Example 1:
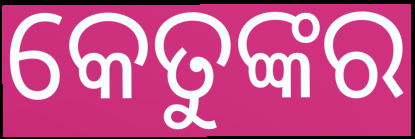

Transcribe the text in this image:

କେତୁଙ୍କର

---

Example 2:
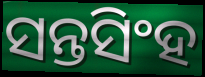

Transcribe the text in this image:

ସନ୍ତସିଂହ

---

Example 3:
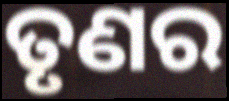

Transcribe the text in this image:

ତୃଣର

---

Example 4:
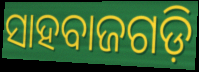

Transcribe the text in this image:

ସାହବାଜଗଡ଼ି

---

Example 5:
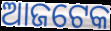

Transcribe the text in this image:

ଆଜଟେକ